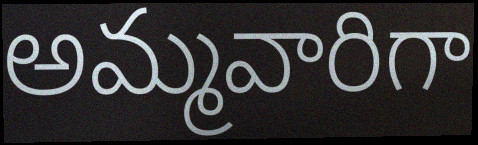
అమ్మవారిగా